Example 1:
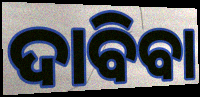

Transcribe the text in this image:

ଦାବିବା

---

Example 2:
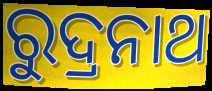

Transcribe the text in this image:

ରୁଦ୍ରନାଥ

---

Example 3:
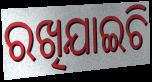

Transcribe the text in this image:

ରଖିଯାଇଚି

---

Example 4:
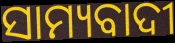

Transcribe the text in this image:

ସାମ୍ୟବାଦୀ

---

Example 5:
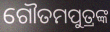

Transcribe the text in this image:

ଗୌତମପୁତ୍ରଙ୍କ